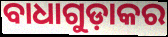
ବାଧାଗୁଡ଼ାକର